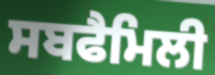
ਸਬਫੈਮਿਲੀ